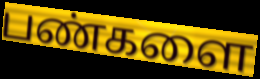
பண்களை